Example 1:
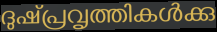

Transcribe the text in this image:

ദുഷ്പ്രവൃത്തികൾക്കു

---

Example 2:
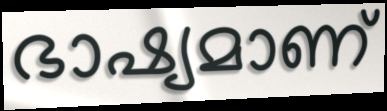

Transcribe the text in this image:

ഭാഷ്യമാണ്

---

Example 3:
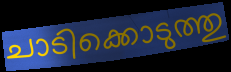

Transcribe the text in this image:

ചാടിക്കൊടുത്തു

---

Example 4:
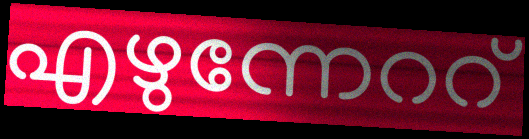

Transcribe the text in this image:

എഴുന്നേററ്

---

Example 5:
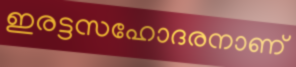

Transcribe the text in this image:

ഇരട്ടസഹോദരനാണ്